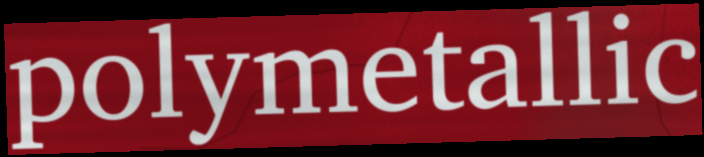
polymetallic